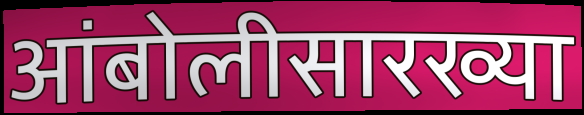
आंबोलीसारख्या